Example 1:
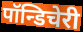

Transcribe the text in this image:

पॉन्डिचेरी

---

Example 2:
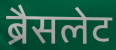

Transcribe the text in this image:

ब्रैसलेट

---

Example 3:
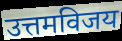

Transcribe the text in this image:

उत्तमविजय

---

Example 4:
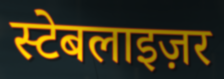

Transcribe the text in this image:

स्टेबलाइज़र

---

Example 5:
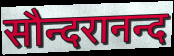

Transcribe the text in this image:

सौन्दरानन्द